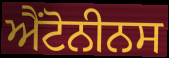
ਐਂਟੋਨੀਨਸ